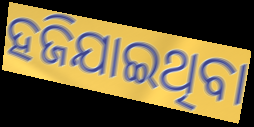
ହଜିଯାଇଥିବା